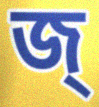
জ্